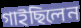
গাইছিলেন